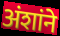
अंशांने